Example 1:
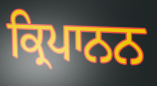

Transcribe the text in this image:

ਕ੍ਰਿਪਾਨਨ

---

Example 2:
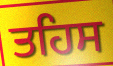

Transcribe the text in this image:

ਤਹਿਸ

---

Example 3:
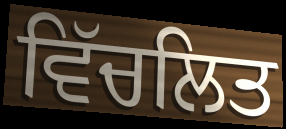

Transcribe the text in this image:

ਵਿੱਚਲਿਤ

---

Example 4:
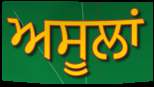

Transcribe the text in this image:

ਅਸੂਲਾਂ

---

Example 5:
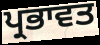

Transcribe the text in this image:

ਪ੍ਰਭਾਵਤ